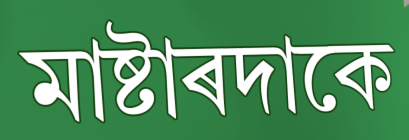
মাষ্টাৰদাকে